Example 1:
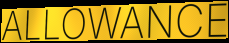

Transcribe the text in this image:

ALLOWANCE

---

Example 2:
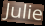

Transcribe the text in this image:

Julie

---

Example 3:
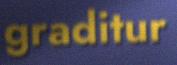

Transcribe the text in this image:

graditur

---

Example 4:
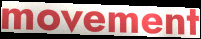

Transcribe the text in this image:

movement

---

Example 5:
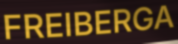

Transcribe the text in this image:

FREIBERGA